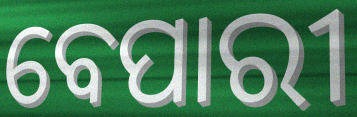
ବେପାରୀ